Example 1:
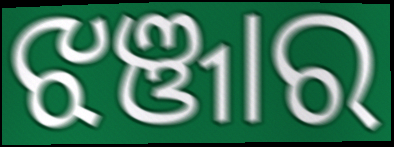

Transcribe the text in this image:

ଝଞ୍ଜାର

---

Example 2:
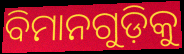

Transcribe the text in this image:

ବିମାନଗୁଡ଼ିକୁ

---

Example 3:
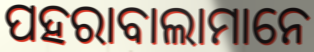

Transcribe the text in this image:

ପହରାବାଲାମାନେ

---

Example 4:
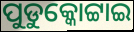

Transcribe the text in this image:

ପୁଡୁକ୍କୋଟ୍ଟାଇ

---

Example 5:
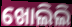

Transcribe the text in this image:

ଖୋଲିଲି